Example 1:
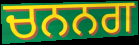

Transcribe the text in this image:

ਚਨਨਗ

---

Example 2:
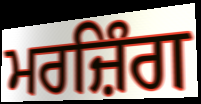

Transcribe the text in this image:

ਮਰਜ਼ਿੰਗ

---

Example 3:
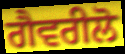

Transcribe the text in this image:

ਗੈਵਰੀਲੋ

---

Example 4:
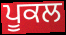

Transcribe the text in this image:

ਪੂਕਲ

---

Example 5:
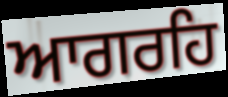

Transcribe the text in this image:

ਆਗਰਹਿ